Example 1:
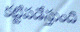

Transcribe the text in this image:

కట్టిపడేస్తుంది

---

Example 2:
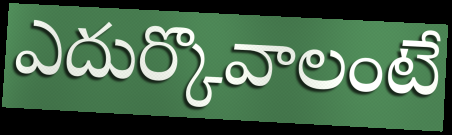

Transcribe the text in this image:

ఎదుర్కొవాలంటే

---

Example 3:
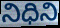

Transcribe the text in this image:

నిధిని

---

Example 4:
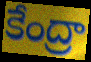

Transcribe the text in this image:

కేంద్రా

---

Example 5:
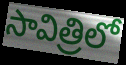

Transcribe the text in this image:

సావిత్రిలో